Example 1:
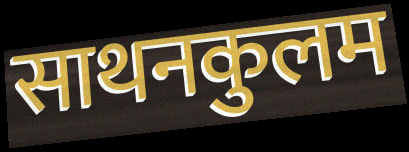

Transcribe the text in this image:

साथनकुलम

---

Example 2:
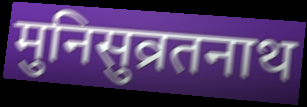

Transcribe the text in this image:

मुनिसुव्रतनाथ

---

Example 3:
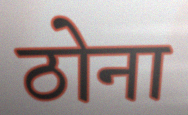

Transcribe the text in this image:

ठोना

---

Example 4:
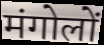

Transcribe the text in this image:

मंगोलों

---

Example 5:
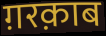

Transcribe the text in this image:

ग़रक़ाब